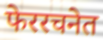
फेररचनेत